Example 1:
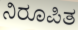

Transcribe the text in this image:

ನಿರೂಪಿತ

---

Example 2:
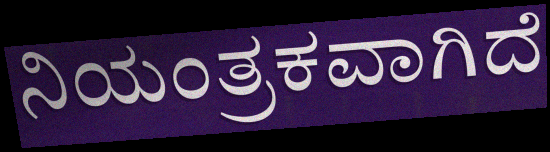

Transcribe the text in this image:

ನಿಯಂತ್ರಕವಾಗಿದೆ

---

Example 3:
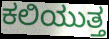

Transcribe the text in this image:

ಕಲಿಯುತ್ತ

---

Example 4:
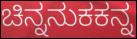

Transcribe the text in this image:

ಚಿನ್ನನುಕಕನ್ನ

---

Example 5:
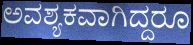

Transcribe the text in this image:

ಅವಶ್ಯಕವಾಗಿದ್ದರೂ